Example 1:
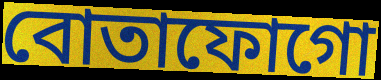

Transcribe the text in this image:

বোতাফোগো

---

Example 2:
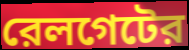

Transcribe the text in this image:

রেলগেটের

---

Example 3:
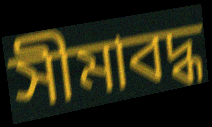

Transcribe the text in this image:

সীমাবদ্ধ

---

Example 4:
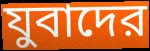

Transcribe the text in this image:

যুবাদের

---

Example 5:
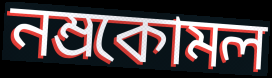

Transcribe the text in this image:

নম্রকোমল